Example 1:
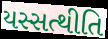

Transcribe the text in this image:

યસ્સત્થીતિ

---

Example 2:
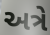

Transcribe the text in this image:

અત્રે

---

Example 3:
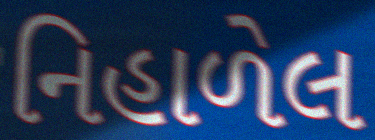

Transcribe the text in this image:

નિહાળેલ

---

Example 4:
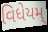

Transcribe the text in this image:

વિધેયમ્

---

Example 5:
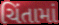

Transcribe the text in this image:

ચિંતામાં